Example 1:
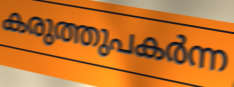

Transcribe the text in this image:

കരുത്തുപകർന്ന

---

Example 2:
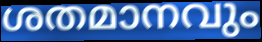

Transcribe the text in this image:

ശതമാനവും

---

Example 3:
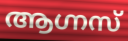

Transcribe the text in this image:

ആഗ്നസ്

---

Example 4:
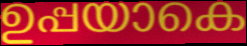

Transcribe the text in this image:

ഉപ്പയാകെ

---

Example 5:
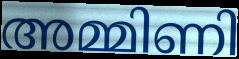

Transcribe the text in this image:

അമ്മിണി